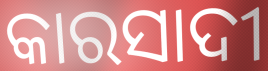
କାରସାଦୀ